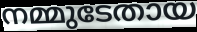
നമ്മുടേതായ